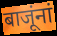
बाजूंनां